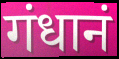
गंधानं